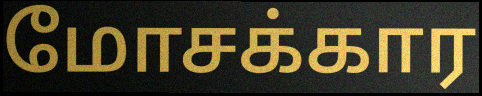
மோசக்கார